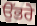
ਉੱਭਰੇ